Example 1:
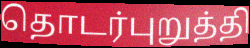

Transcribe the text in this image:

தொடர்புறுத்தி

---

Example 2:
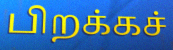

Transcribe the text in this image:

பிறக்கச்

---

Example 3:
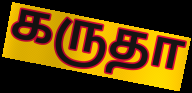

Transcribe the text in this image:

கருதா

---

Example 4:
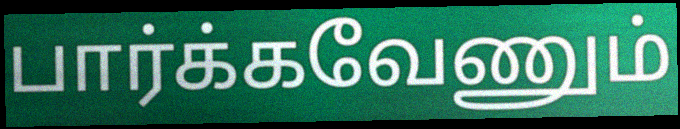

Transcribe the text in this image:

பார்க்கவேணும்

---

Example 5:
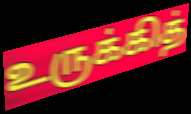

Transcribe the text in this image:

உருக்கித்